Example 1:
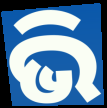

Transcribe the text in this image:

ଭି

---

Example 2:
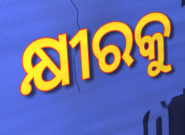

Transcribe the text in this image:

କ୍ଷୀରକୁ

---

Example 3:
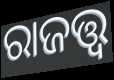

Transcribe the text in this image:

ରାଜତ୍ତ୍ୱ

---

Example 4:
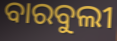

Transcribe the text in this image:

ବାରବୁଲୀ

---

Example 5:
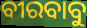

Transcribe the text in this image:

ବୀରବାବୁ